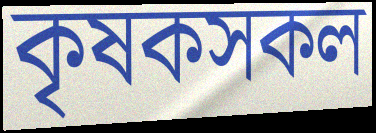
কৃষকসকল